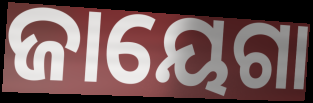
ଜାୟେଗା